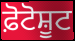
ਫ਼ੋਟੋਸ਼ੂਟ